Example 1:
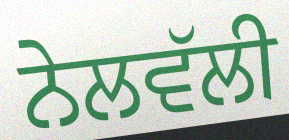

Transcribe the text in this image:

ਨੇਲਵੱਲੀ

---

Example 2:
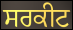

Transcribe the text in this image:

ਸਰਕੀਟ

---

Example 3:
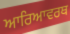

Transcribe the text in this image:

ਆਰਿਆਵਰਥ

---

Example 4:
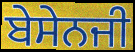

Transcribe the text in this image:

ਬੇਸੇਨਜੀ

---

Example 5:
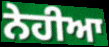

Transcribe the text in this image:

ਨੇਹੀਆ